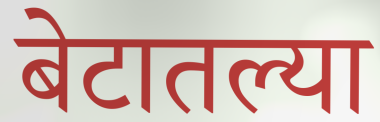
बेटातल्या